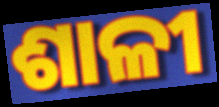
ଶାଳୀ